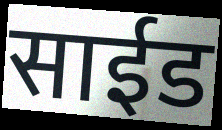
साईड